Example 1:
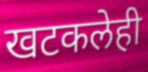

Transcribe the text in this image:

खटकलेही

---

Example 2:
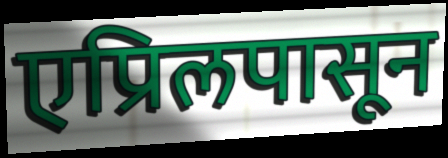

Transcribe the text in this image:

एप्रिलपासून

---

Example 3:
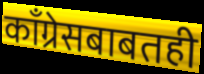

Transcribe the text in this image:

काँग्रेसबाबतही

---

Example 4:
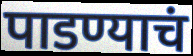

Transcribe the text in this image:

पाडण्याचं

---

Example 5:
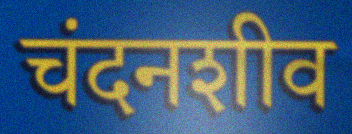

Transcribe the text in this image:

चंदनशीव